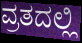
ವ್ರತದಲ್ಲಿ